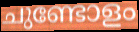
ചുണ്ടോളം